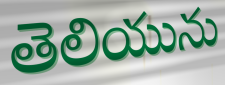
తెలియును